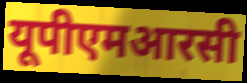
यूपीएमआरसी